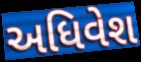
અધિવેશ